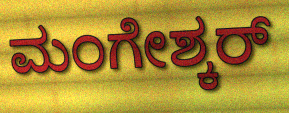
ಮಂಗೇಶ್ಕರ್